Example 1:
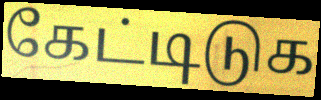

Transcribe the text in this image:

கேட்டிடுக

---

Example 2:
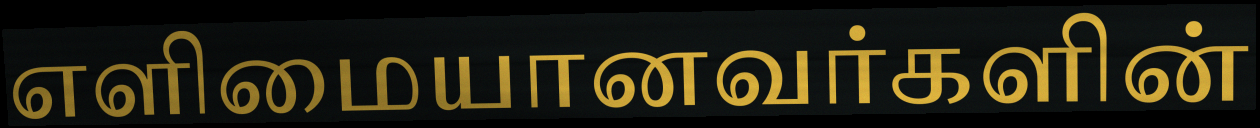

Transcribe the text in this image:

எளிமையானவர்களின்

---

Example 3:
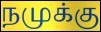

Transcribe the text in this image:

நமுக்கு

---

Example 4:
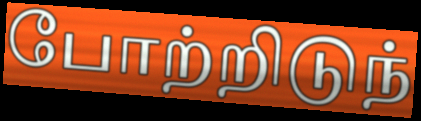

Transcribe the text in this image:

போற்றிடுந்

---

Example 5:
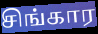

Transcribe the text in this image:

சிங்கார